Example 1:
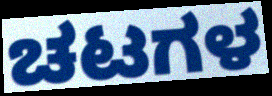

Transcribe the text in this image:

ಚಟಗಳ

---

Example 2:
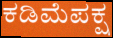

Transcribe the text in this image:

ಕಡಿಮೆಪಕ್ಷ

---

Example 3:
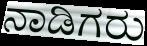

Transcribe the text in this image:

ನಾಡಿಗರು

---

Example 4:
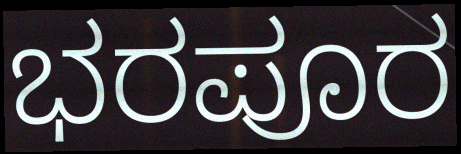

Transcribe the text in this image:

ಭರಪೂರ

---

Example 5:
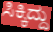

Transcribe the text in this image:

ಸಿಕ್ಕಿದ್ದು